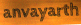
anvayarth